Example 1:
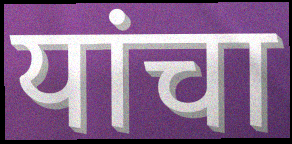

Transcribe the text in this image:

यांचा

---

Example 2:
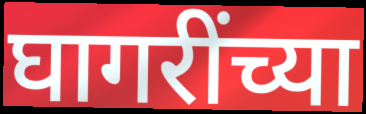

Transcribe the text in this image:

घागरींच्या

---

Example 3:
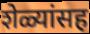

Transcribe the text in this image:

शेळ्यांसह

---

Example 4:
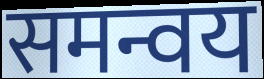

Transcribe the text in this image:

समन्वय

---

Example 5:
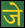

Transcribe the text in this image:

जे